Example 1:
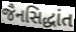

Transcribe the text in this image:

જૈનસિદ્ધાંત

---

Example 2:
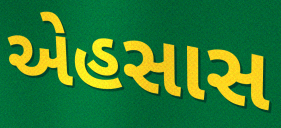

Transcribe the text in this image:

એહસાસ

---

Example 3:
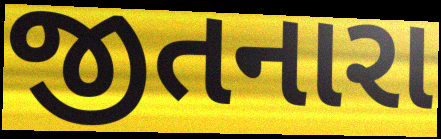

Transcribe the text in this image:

જીતનારા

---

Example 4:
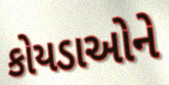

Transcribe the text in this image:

કોયડાઓને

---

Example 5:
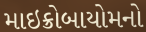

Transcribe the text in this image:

માઇક્રોબાયોમનો